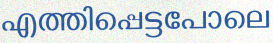
എത്തിപ്പെട്ടപോലെ